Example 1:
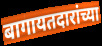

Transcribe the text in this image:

बागायतदारांच्या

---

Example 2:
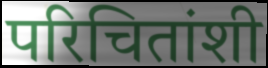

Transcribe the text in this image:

परिचितांशी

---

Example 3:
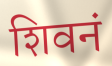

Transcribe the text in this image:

शिवनं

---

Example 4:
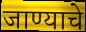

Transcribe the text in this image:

जाण्याचे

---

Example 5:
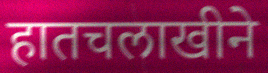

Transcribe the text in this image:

हातचलाखीने